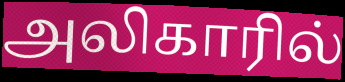
அலிகாரில்